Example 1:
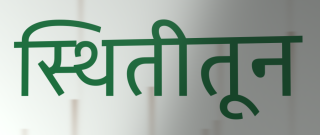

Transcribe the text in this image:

स्थितीतून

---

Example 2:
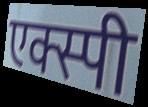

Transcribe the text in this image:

एक्स्पी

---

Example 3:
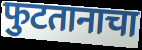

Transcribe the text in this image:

फुटतानाचा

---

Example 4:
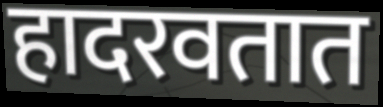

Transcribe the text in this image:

हादरवतात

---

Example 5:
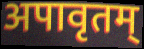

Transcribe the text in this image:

अपावृतम्